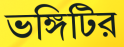
ভঙ্গিটির